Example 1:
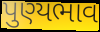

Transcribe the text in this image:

પુણ્યભાવ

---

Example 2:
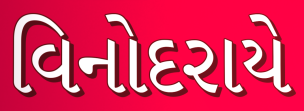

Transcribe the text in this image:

વિનોદરાયે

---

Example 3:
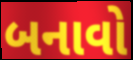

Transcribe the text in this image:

બનાવો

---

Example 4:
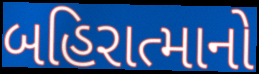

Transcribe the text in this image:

બહિરાત્માનો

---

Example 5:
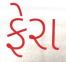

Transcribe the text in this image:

ફેરા